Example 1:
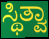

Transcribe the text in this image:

ಸ್ಥಿತ್ವಾ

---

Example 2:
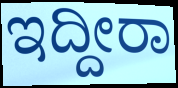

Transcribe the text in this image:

ಇದ್ದೀರಾ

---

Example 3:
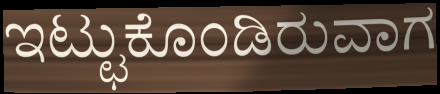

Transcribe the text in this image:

ಇಟ್ಟುಕೊಂಡಿರುವಾಗ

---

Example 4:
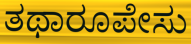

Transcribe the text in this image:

ತಥಾರೂಪೇಸು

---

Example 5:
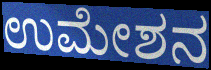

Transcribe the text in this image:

ಉಮೇಶನ